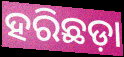
ହରିଛଡ଼ା